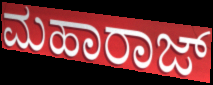
ಮಹಾರಾಜ್